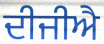
ਦੀਜੀਐ